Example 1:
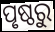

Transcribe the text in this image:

ପୃଷ୍ଠରୁ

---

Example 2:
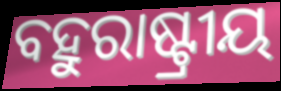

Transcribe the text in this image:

ବହୁରାଷ୍ଟ୍ରୀୟ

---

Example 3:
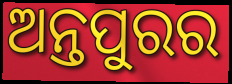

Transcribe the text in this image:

ଅନ୍ତପୁରର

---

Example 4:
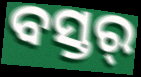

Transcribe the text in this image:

ବସ୍ତର୍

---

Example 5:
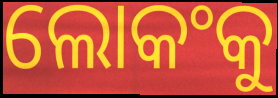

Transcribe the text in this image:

ଲୋକଂକୁ